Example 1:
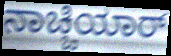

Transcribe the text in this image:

ನಾಚ್ಚಿಯಾರ್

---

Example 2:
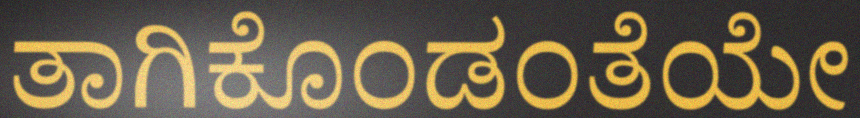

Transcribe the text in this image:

ತಾಗಿಕೊಂಡಂತೆಯೇ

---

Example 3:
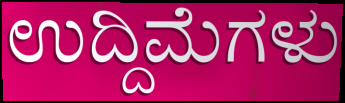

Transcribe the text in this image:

ಉದ್ದಿಮೆಗಳು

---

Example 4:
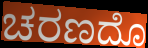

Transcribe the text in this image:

ಚರಣದೊ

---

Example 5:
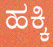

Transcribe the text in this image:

ಹಕ್ಕಿ